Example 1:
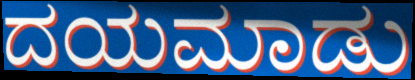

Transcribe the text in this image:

ದಯಮಾಡು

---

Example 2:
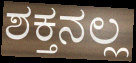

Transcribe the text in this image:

ಶಕ್ತನಲ್ಲ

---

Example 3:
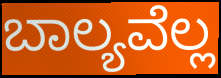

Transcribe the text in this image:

ಬಾಲ್ಯವೆಲ್ಲ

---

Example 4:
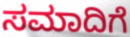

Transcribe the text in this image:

ಸಮಾದಿಗೆ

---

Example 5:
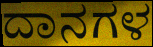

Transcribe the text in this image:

ದಾನಗಳ